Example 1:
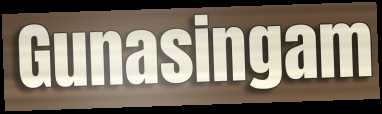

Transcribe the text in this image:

Gunasingam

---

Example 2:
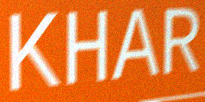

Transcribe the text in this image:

KHAR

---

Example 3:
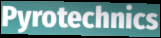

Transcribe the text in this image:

Pyrotechnics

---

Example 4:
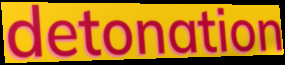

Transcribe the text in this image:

detonation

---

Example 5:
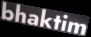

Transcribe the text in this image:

bhaktim